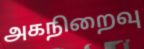
அகநிறைவு